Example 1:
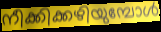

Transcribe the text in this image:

നീക്കിക്കഴിയുമ്പോൾ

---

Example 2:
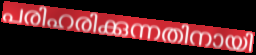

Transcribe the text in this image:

പരിഹരിക്കുന്നതിനായി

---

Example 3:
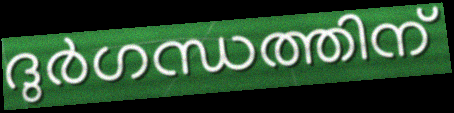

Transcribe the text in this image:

ദുർഗന്ധത്തിന്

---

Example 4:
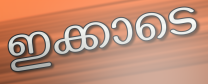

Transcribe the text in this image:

ഇക്കാടെ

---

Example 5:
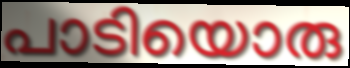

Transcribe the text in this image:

പാടിയൊരു